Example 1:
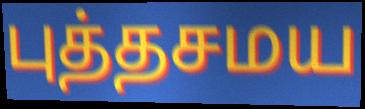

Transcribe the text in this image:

புத்தசமய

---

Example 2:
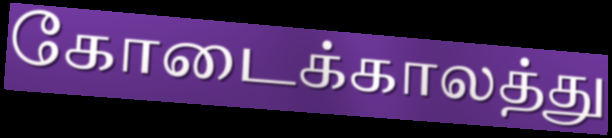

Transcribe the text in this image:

கோடைக்காலத்து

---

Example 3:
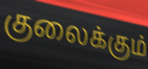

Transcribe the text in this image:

குலைக்கும்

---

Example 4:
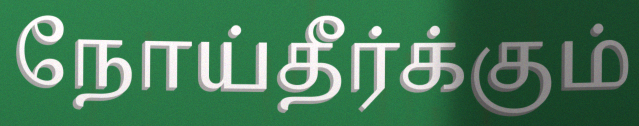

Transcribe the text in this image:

நோய்தீர்க்கும்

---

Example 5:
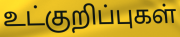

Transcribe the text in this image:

உட்குறிப்புகள்